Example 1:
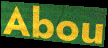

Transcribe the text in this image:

Abou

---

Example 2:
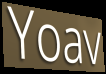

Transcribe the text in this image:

Yoav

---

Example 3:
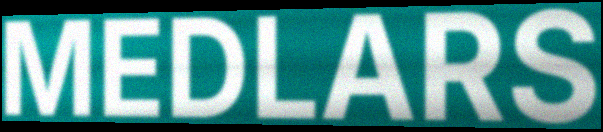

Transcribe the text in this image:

MEDLARS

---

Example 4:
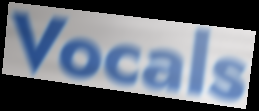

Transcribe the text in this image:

Vocals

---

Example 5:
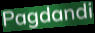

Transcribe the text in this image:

Pagdandi